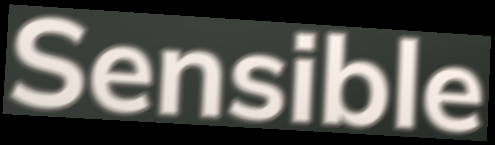
Sensible